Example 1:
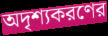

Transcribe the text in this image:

অদৃশ্যকরণের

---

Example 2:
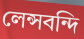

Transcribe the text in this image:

লেন্সবন্দি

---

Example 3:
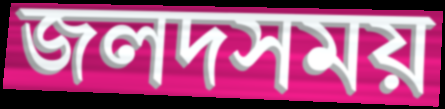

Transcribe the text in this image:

জলদসময়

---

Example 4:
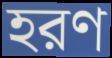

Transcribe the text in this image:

হরণ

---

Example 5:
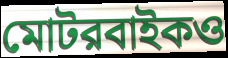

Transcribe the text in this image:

মোটরবাইকও